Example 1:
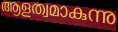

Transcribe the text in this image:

ആളത്വമാകുന്നു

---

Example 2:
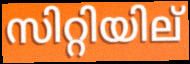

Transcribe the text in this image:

സിറ്റിയില്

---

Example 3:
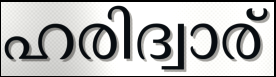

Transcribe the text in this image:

ഹരിദ്വാര്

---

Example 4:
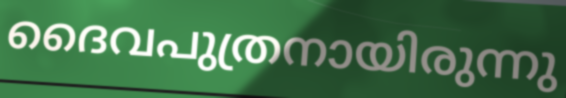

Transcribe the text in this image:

ദൈവപുത്രനായിരുന്നു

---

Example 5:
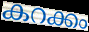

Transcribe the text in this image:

കറക്കം